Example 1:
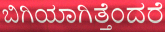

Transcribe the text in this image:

ಬಿಗಿಯಾಗಿತ್ತೆಂದರೆ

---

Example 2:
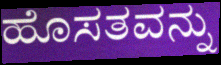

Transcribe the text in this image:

ಹೊಸತವನ್ನು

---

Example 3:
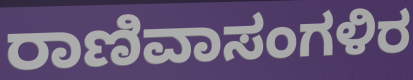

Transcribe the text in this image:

ರಾಣಿವಾಸಂಗಳಿರ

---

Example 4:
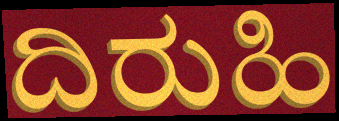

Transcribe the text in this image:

ದಿರುಹಿ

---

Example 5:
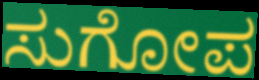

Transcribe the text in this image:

ಸುಗೋಪ